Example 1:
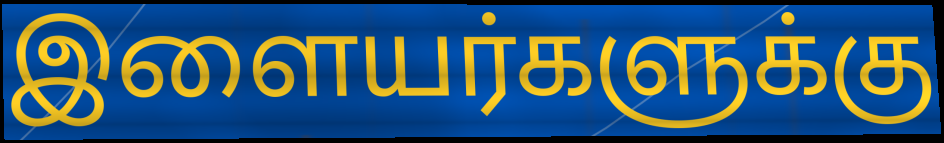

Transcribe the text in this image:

இளையர்களுக்கு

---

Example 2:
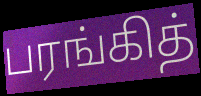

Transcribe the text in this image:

பரங்கித்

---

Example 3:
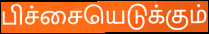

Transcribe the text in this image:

பிச்சையெடுக்கும்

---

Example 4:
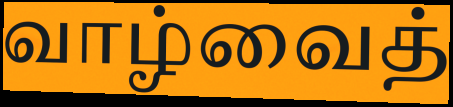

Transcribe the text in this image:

வாழ்வைத்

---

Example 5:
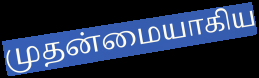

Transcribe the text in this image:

முதன்மையாகிய